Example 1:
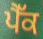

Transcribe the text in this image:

ਪੈੱਕ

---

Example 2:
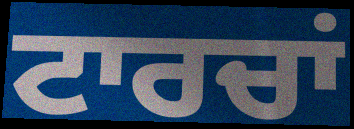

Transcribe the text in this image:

ਟਾਰਚਾਂ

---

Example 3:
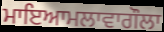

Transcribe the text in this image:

ਮਾਇਆਮਲਾਵਾਗੌਲਾ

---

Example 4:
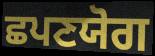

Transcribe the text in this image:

ਛਪਣਯੋਗ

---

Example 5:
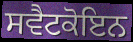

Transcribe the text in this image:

ਸਵੈਟਕੋਇਨ